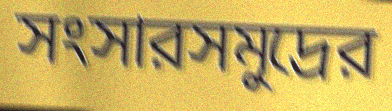
সংসারসমুদ্রের